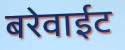
बरेवाईट